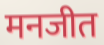
मनजीत